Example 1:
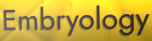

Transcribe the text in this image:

Embryology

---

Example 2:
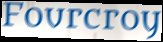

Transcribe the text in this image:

Fourcroy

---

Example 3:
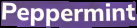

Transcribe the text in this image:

Peppermint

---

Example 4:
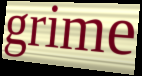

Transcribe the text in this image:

grime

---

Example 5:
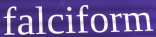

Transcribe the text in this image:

falciform